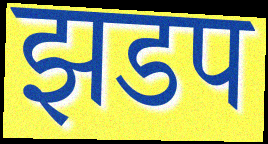
झडप